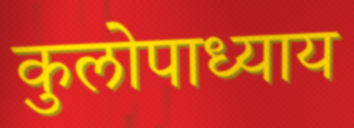
कुलोपाध्याय